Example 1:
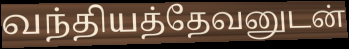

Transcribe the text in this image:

வந்தியத்தேவனுடன்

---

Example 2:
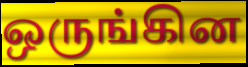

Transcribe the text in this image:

ஒருங்கின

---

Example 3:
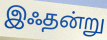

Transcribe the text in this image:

இஃதன்று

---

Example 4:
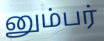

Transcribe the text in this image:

னும்பர்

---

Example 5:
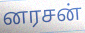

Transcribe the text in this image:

னரசன்